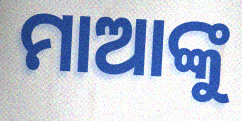
ମାଆଙ୍କୁ